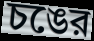
চঙের